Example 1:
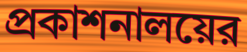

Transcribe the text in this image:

প্রকাশনালয়ের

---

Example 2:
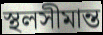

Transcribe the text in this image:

স্থলসীমান্ত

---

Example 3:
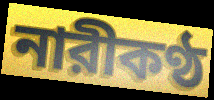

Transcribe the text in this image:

নারীকণ্ঠ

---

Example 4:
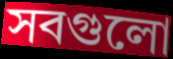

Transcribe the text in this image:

সবগুলো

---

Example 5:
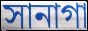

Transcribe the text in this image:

সানাগা